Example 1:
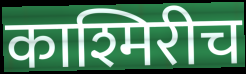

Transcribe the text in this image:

काश्मिरीच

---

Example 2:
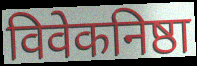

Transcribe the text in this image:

विवेकनिष्ठा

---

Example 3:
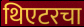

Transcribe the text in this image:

थिएटरचा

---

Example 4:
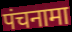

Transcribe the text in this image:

पंचनामा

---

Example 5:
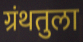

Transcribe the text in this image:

ग्रंथतुला